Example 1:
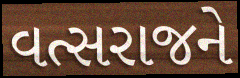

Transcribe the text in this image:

વત્સરાજને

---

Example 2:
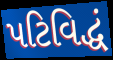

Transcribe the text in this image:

પટિવિદ્ધં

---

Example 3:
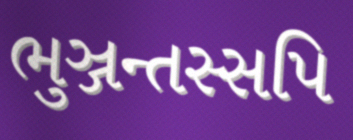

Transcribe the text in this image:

ભુઞ્જન્તસ્સપિ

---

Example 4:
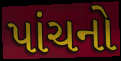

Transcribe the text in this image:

પાંચનો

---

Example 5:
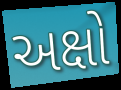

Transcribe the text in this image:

અક્ષો